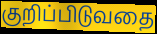
குறிப்பிடுவதை